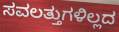
ಸವಲತ್ತುಗಳಿಲ್ಲದ